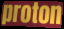
proton